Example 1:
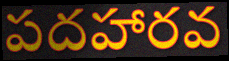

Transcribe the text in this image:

పదహారవ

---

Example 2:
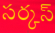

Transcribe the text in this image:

సర్కస్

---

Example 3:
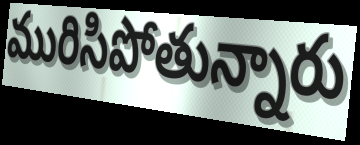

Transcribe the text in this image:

మురిసిపోతున్నారు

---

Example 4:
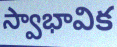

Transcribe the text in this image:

స్వాభావిక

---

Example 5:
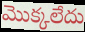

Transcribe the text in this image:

మొక్కలేదు